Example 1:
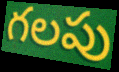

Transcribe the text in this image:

గలపు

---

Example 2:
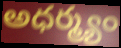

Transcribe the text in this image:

అధర్మ్యం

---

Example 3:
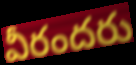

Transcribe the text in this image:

వీరందరు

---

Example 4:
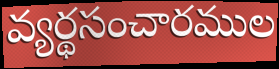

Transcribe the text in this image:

వ్యర్థసంచారముల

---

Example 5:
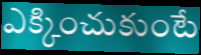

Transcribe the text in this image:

ఎక్కించుకుంటే